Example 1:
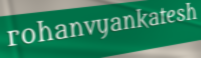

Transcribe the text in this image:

rohanvyankatesh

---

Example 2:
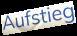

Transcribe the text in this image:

Aufstieg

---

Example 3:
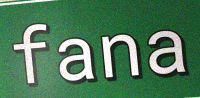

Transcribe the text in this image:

fana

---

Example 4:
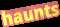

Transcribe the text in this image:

haunts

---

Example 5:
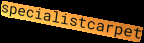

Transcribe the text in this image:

specialistcarpet